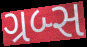
ગ્રબ્સ